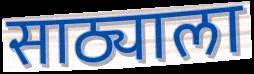
साठ्याला